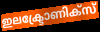
ഇലക്ട്രോണിക്സ്